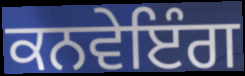
ਕਨਵੇਇੰਗ